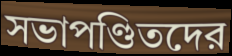
সভাপণ্ডিতদের